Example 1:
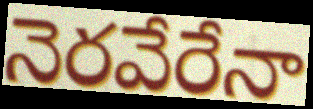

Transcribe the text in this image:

నెరవేరేనా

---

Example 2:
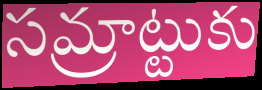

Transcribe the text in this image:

సమ్రాట్టుకు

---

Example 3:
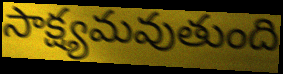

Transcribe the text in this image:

సాక్ష్యమవుతుంది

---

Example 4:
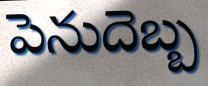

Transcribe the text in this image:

పెనుదెబ్బ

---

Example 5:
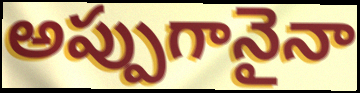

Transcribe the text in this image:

అప్పుగానైనా